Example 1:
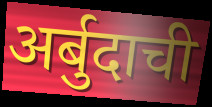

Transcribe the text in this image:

अर्बुदाची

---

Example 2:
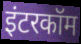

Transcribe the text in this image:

इंटरकॉम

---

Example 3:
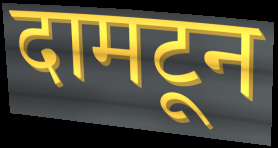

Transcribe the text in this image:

दामटून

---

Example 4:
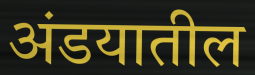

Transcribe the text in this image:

अंडयातील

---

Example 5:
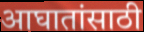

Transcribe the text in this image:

आघातांसाठी